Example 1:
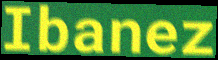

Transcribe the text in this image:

Ibanez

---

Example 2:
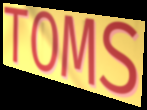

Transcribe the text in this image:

TOMS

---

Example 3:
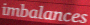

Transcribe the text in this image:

imbalances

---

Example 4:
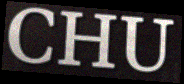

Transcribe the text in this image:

CHU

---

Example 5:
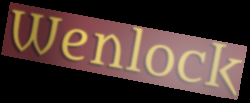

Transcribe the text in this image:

Wenlock